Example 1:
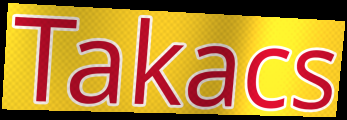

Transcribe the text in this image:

Takacs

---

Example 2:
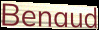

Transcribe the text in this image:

Benaud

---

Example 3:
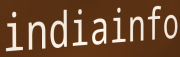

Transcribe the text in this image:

indiainfo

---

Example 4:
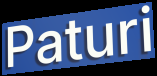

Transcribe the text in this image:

Paturi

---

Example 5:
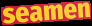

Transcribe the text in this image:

seamen